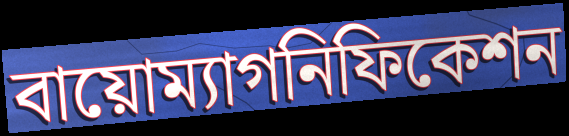
বায়োম্যাগনিফিকেশন